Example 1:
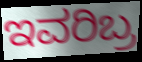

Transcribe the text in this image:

ಇವರಿಬ್ರ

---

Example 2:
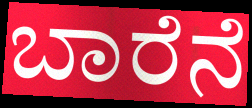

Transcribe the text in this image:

ಬಾರೆನೆ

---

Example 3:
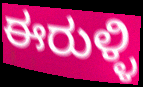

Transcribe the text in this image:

ಈರುಳ್ಳಿ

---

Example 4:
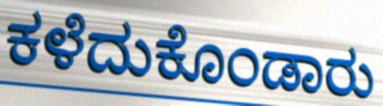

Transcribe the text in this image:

ಕಳೆದುಕೊಂಡಾರು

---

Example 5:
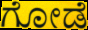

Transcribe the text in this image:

ಗೋಡೆ